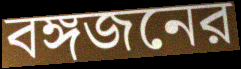
বঙ্গজনের